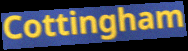
Cottingham